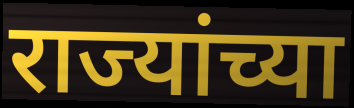
राज्यांच्या